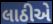
લાઠીએ